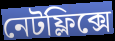
নেটফ্লিক্সে